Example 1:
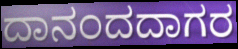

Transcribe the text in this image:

ದಾನಂದದಾಗರ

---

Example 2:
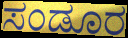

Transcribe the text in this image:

ಸಂಡೂರ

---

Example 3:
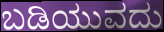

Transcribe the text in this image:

ಬಡಿಯುವದು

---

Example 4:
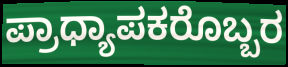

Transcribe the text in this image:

ಪ್ರಾಧ್ಯಾಪಕರೊಬ್ಬರ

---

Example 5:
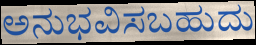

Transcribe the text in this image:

ಅನುಭವಿಸಬಹುದು